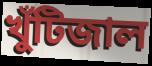
খুঁটিজাল